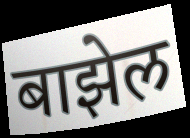
बाझेल